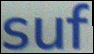
suf